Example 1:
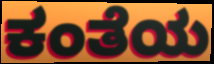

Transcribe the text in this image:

ಕಂತೆಯ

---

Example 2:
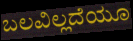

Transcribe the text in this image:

ಬಲವಿಲ್ಲದೆಯೂ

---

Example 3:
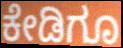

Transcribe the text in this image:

ಕೇಡಿಗೂ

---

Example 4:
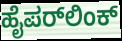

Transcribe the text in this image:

ಹೈಪರ್‌ಲಿಂಕ್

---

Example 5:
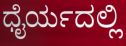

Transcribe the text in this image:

ಧೈರ್ಯದಲ್ಲಿ